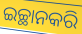
ଇଚ୍ଛାନକରି